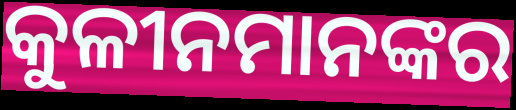
କୁଳୀନମାନଙ୍କର